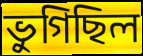
ভুগিছিল